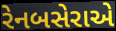
રેનબસેરાએ